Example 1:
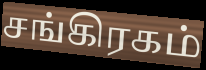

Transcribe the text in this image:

சங்கிரகம்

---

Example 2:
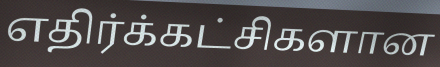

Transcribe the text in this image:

எதிர்க்கட்சிகளான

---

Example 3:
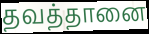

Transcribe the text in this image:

தவத்தானை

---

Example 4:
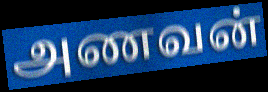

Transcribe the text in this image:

அணவன்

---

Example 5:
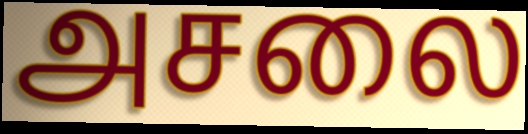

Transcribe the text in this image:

அசலை